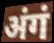
अंगं